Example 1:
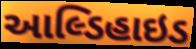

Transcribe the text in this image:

આલ્ડિહાઇડ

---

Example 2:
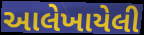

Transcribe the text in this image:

આલેખાયેલી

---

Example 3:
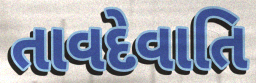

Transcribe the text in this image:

તાવદેવાતિ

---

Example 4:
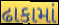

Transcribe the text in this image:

ઢાકામાં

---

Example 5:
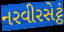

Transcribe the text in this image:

નરવીરસેટ્ઠં